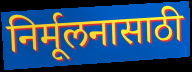
निर्मूलनासाठी